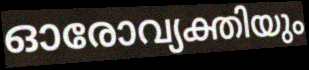
ഓരോവ്യക്തിയും